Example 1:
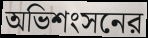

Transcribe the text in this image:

অভিশংসনের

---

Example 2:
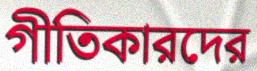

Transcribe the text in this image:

গীতিকারদের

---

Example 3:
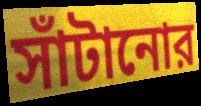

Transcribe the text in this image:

সাঁটানোর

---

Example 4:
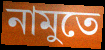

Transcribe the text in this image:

নামুতে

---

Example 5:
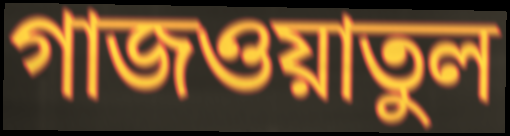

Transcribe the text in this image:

গাজওয়াতুল